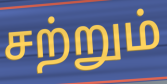
சற்றும்